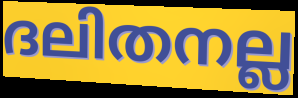
ദലിതനല്ല